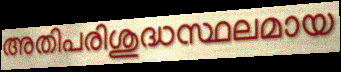
അതിപരിശുദ്ധസ്ഥലമായ